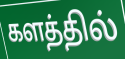
களத்தில்